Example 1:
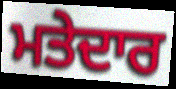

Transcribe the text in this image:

ਮਤੇਦਾਰ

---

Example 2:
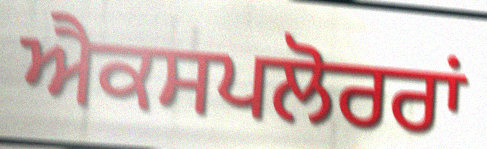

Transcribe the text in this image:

ਐਕਸਪਲੋਰਰਾਂ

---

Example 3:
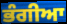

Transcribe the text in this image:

ਭੰਗੀਆ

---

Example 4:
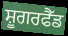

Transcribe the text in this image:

ਸ਼ੂਗਰਫੈੱਡ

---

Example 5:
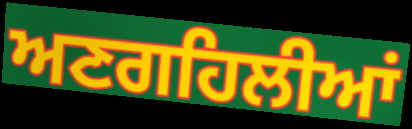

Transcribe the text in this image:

ਅਣਗਹਿਲੀਆਂ